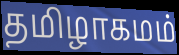
தமிழாகமம்